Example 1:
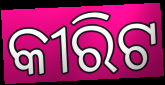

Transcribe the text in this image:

କୀରିଟ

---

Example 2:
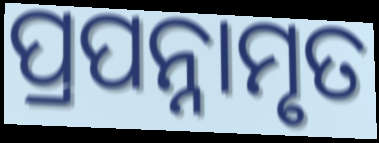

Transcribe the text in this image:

ପ୍ରପନ୍ନାମୃତ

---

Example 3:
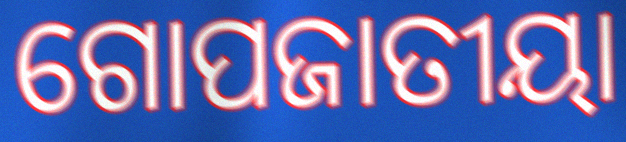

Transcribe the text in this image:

ଗୋପଜାତୀୟା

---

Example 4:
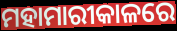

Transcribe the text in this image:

ମହାମାରୀକାଳରେ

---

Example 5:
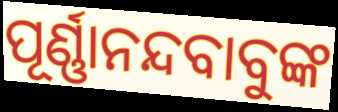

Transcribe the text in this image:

ପୂର୍ଣ୍ଣାନନ୍ଦବାବୁଙ୍କ